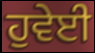
ਹੁਵੇਈ